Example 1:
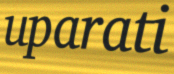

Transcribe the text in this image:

uparati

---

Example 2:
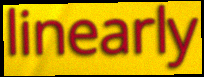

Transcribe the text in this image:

linearly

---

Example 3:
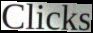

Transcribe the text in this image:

Clicks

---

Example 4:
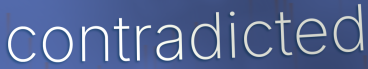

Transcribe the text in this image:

contradicted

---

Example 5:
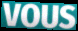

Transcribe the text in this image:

VOUS